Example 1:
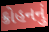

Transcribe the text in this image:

ક્રોહનનું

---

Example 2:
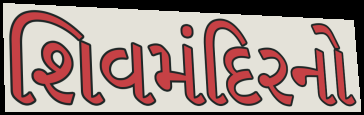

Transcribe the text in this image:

શિવમંદિરનો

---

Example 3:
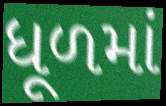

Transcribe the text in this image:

ધૂળમાં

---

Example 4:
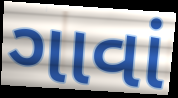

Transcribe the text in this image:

ગાવાં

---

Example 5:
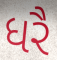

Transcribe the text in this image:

ધરૈ